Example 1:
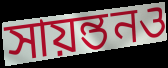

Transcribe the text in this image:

সায়ন্তনও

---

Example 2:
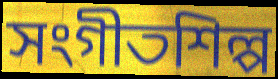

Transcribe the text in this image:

সংগীতশিল্প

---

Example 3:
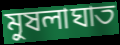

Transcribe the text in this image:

মুষলাঘাত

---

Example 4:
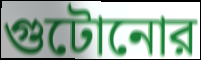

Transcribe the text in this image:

গুটোনোর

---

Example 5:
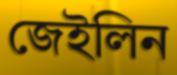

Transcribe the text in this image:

জেইলিন